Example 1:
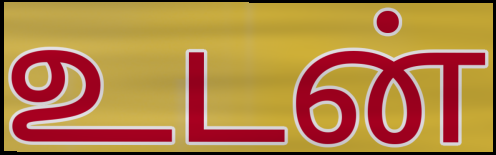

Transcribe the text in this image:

உடன்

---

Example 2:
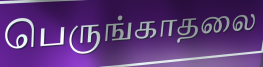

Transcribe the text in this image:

பெருங்காதலை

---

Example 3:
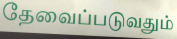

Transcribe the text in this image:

தேவைப்படுவதும்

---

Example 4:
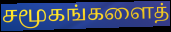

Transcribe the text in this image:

சமூகங்களைத்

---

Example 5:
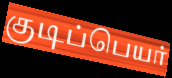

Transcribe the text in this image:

குடிப்பெயர்